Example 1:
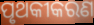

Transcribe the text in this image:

ପୃଥକୀକରଣ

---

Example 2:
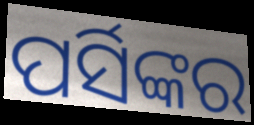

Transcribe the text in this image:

ପର୍ସିଙ୍କର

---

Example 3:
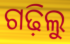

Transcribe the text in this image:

ଗଢ଼ିଲୁ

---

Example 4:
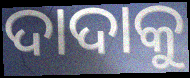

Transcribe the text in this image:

ଦାଦାକୁ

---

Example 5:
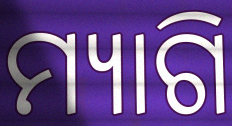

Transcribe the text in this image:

ମ୍ୟାଗି